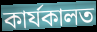
কাৰ্যকালত